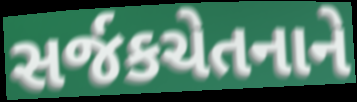
સર્જકચેતનાને